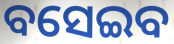
ବସେଇବ